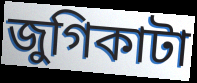
জুগিকাটা